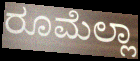
ರೂಮೆಲ್ಲಾ